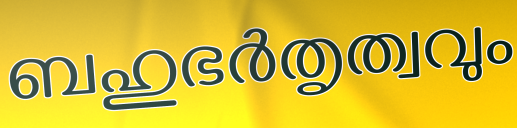
ബഹുഭർതൃത്വവും